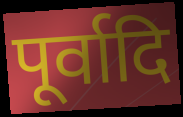
पूर्वादि